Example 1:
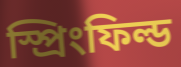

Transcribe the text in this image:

স্প্রিংফিল্ড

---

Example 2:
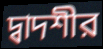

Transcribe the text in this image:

দ্বাদশীর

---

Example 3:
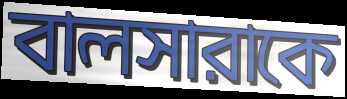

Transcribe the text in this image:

বালসারাকে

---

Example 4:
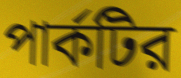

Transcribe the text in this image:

পার্কটির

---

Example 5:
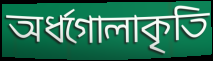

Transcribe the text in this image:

অর্ধগোলাকৃতি